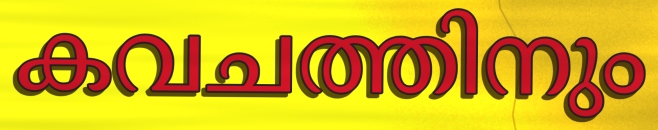
കവചത്തിനും